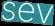
sev